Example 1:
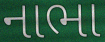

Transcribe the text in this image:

નાભા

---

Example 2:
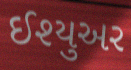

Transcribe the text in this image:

ઈશ્યુઅર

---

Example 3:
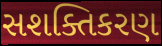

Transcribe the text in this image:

સશક્તિકરણ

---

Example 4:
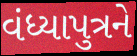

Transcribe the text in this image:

વંધ્યાપુત્રને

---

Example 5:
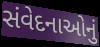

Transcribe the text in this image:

સંવેદનાઓનું